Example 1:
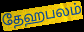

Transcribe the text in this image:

தேஹபலம்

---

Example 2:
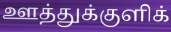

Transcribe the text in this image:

ஊத்துக்குளிக்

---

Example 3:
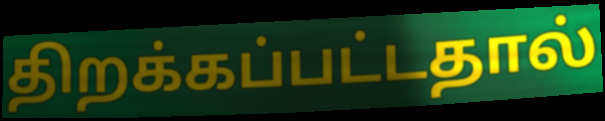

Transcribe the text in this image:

திறக்கப்பட்டதால்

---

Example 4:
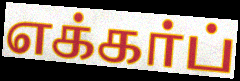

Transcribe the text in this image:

எக்கர்ப்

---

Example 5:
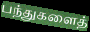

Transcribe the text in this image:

பந்துகளைத்